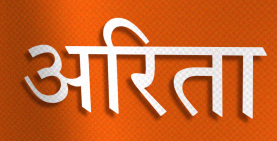
अरिता